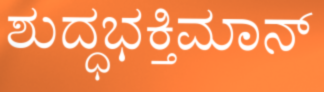
ಶುದ್ಧಭಕ್ತಿಮಾನ್